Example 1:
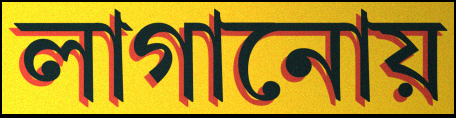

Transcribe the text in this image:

লাগানোয়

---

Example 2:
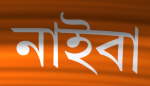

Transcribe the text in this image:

নাইবা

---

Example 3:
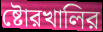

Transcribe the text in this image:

ষ্টোরখালির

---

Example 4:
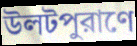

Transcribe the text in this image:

উলটপুরাণে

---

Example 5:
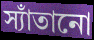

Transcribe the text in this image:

স্যাঁতানো